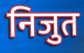
निजुत